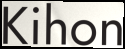
Kihon